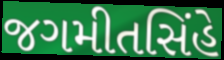
જગમીતસિંહે